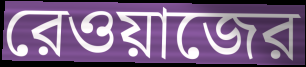
রেওয়াজের